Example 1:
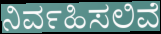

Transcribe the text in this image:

ನಿರ್ವಹಿಸಲಿವೆ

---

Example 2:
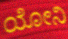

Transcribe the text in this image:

ಯೋನಿ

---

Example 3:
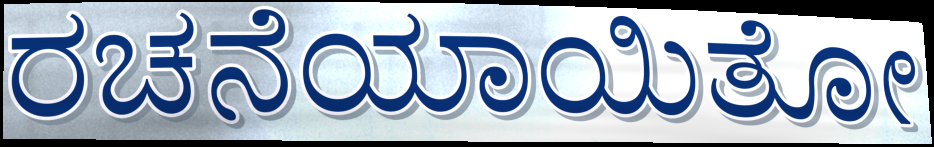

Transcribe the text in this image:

ರಚನೆಯಾಯಿತೋ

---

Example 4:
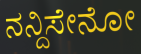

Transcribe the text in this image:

ನನ್ದಿಸೇನೋ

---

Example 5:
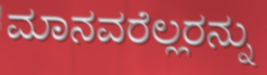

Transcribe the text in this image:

ಮಾನವರೆಲ್ಲರನ್ನು